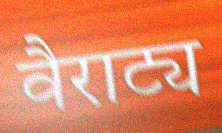
वैराट्य